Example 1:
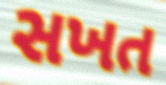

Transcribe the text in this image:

સખત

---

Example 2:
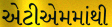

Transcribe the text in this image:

એટીએમમાંથી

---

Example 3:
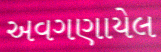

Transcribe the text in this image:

અવગણાયેલ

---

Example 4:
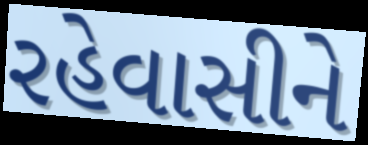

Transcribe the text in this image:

રહેવાસીને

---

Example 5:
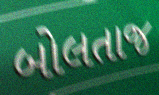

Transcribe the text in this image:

બોલતાજ